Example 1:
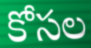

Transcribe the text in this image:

కోసల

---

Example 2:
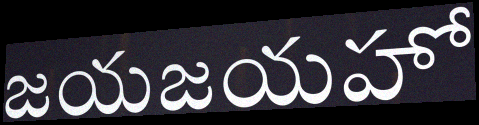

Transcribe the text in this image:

జయజయహో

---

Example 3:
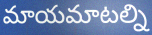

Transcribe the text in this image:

మాయమాటల్ని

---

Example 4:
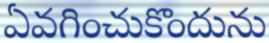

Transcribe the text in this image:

ఏవగించుకొందును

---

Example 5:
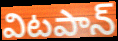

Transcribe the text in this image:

విటపాన్